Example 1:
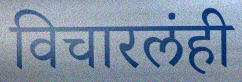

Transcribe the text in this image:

विचारलंही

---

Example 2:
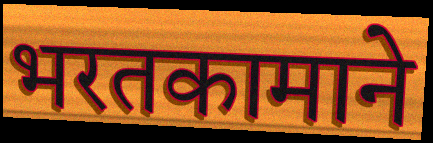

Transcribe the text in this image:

भरतकामाने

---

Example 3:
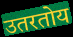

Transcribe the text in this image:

उतरतोय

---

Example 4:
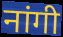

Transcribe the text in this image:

नांगी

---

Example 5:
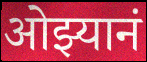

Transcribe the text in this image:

ओझ्यानं